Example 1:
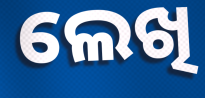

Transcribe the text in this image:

ଲେଖି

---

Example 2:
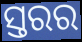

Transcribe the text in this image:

ସ୍ତରର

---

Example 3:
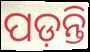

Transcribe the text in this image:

ପଡ଼ନ୍ତି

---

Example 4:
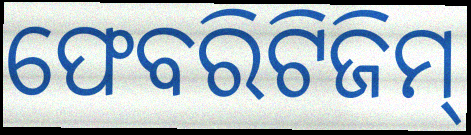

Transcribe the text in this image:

ଫେବରିଟିଜିମ୍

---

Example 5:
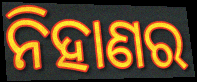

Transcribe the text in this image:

ନିହାଣର